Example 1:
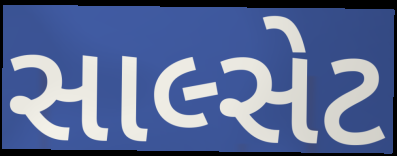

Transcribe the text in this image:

સાલ્સેટ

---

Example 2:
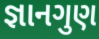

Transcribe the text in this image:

જ્ઞાનગુણ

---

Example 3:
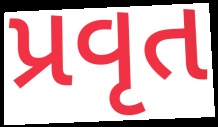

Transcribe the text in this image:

પ્રવૃત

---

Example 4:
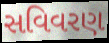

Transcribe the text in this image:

સવિવરણ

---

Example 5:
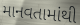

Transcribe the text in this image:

માનવતામાંથી